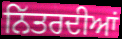
ਨਿੱਤਰਦੀਆਂ